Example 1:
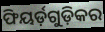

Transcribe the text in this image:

ଫିୟର୍ଡ଼ଗୁଡ଼ିକର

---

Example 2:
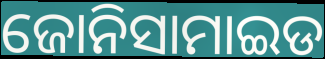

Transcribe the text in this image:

ଜୋନିସାମାଇଡ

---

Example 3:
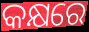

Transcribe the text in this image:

କକ୍ଷରେ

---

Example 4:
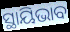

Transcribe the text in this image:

ସ୍ଥାୟିଭାବ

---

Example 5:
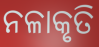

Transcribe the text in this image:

ନଳାକୃତି